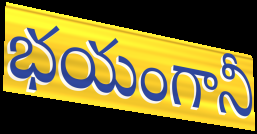
భయంగానీ